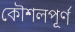
কৌশলপূর্ণ